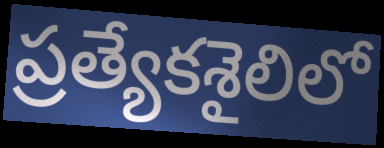
ప్రత్యేకశైలిలో